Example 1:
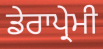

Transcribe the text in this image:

ਡੇਰਾਪ੍ਰੇਮੀ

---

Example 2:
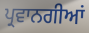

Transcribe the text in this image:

ਪ੍ਰਵਾਨਗੀਆਂ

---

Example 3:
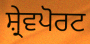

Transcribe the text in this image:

ਸ਼੍ਰੇਵਪੋਰਟ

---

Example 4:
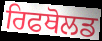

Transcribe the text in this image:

ਰਿਫਥੋਲਡ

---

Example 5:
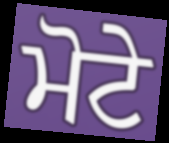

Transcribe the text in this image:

ਮੋਟੇ